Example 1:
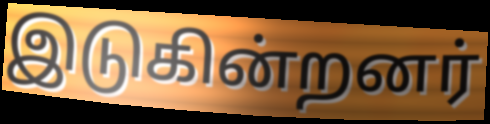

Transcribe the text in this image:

இடுகின்றனர்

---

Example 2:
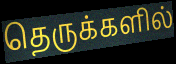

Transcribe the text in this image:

தெருக்களில்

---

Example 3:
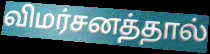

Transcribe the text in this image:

விமர்சனத்தால்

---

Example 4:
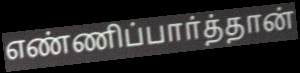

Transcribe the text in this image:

எண்ணிப்பார்த்தான்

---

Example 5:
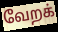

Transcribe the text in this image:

வேறக்